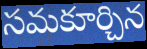
సమకూర్చిన